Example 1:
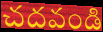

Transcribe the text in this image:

చదవండి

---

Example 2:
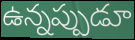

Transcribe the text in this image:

ఉన్నప్పుడూ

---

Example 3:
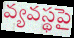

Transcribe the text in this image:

వ్యవస్థపై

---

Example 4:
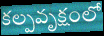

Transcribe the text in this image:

కల్పవృక్షంలో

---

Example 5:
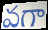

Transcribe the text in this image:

వగా